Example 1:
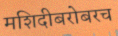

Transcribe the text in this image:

मशिदीबरोबरच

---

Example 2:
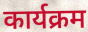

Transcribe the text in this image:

कार्यक्रम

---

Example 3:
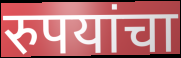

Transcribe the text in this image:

रुपयांचा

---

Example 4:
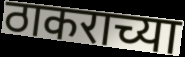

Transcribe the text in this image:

ठाकराच्या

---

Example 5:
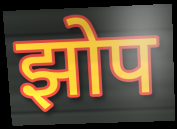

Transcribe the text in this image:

झोप